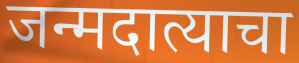
जन्मदात्याचा